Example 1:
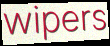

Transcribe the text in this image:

wipers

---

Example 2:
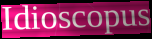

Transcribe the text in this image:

Idioscopus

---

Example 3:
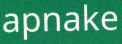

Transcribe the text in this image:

apnake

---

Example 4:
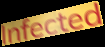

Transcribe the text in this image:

Infected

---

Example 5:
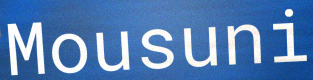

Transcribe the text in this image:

Mousuni